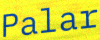
Palar